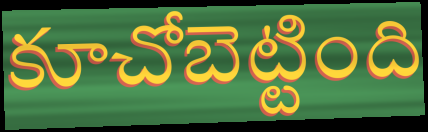
కూచోబెట్టింది